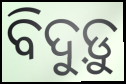
ବିଦୁଡ଼ୁ